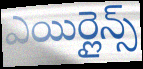
ఎయిర్లైన్స్